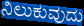
ನಿಲುಕುವುದು